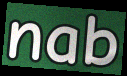
nab